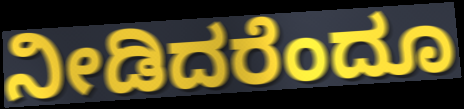
ನೀಡಿದರೆಂದೂ